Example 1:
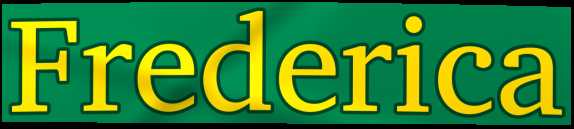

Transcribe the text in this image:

Frederica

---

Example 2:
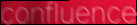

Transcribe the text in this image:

confluence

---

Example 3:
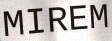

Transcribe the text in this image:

MIREM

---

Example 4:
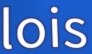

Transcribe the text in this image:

lois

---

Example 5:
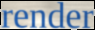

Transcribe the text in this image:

render